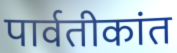
पार्वतीकांत